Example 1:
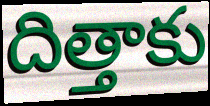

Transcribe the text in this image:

దిత్తాకు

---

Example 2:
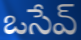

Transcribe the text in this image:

ఒసేవ్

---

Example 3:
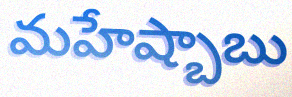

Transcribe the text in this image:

మహేష్బాబు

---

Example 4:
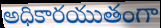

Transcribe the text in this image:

అధికారయుతంగా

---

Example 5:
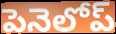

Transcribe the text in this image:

పెనెలోప్